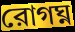
রোগঘ্ন